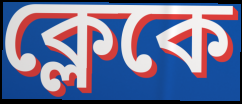
ক্লেকে